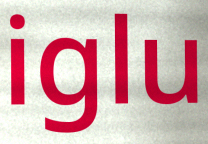
iglu